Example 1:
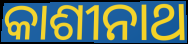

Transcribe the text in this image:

କାଶୀନାଥ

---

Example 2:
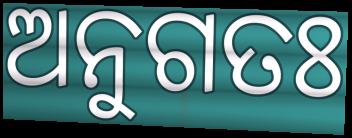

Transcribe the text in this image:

ଅନୁଗତଃ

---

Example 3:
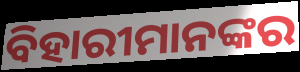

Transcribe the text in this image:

ବିହାରୀମାନଙ୍କର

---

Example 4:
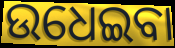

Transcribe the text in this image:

ଉଧେଇବା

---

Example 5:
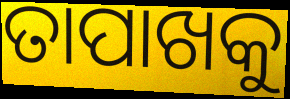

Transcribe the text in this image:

ତାପାଖକୁ